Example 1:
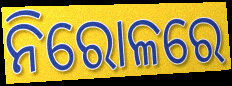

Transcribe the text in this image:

ନିରୋଳରେ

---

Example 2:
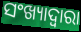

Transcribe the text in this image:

ସଂଖ୍ୟାଦ୍ୱାରା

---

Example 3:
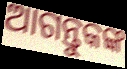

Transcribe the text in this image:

ଆଗନ୍ତୁକଙ୍କ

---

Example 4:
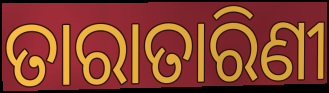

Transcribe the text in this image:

ତାରାତାରିଣୀ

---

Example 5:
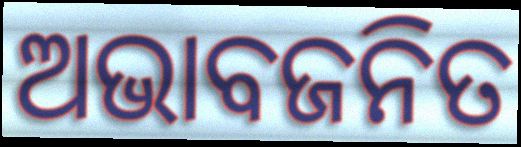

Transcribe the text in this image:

ଅଭାବଜନିତ